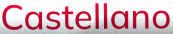
Castellano